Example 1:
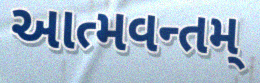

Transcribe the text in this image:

આત્મવન્તમ્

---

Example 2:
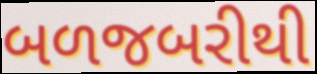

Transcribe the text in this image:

બળજબરીથી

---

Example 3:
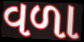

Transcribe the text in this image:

વળા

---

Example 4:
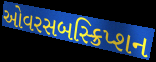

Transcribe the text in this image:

ઓવરસબસ્ક્રિપ્શન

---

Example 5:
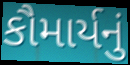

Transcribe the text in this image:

કૌમાર્યનું